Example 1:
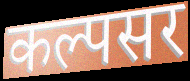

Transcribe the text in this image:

कल्पसर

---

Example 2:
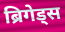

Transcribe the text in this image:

ब्रिगेड्स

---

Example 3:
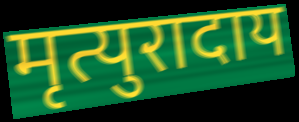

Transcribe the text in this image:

मृत्युरादाय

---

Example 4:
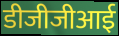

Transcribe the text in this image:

डीजीजीआई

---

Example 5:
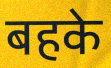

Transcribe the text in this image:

बहके